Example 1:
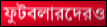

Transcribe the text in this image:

ফুটবলারদেরও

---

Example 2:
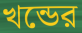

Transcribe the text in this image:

খন্ডের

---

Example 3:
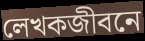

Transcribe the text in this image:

লেখকজীবনে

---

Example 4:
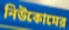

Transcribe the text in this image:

নিউকোমের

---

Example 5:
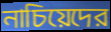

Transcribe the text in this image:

নাচিয়েদের